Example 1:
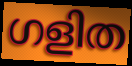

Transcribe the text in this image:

ഗളിത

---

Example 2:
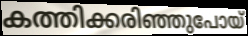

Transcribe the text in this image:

കത്തിക്കരിഞ്ഞുപോയ്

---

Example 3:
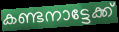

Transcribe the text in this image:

കണ്ടനാട്ടേക്ക്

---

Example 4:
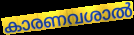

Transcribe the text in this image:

കാരണവശാൽ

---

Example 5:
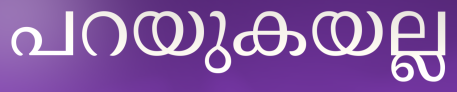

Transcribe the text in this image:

പറയുകയല്ല